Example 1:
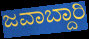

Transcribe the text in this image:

ಜವಾಬ್ದಾರಿ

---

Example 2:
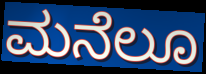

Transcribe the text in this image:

ಮನೆಲೂ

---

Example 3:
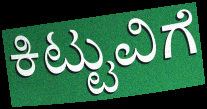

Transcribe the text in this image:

ಕಿಟ್ಟುವಿಗೆ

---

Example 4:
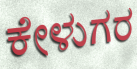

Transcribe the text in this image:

ಕೇಳುಗರ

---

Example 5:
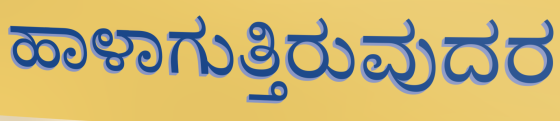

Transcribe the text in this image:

ಹಾಳಾಗುತ್ತಿರುವುದರ